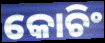
କୋଚିଂ